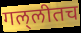
गल्लीतच